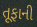
તૂફાની